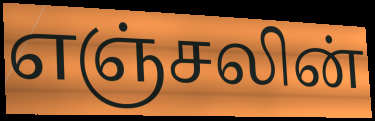
எஞ்சலின்